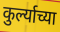
कुर्ल्याच्या